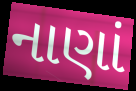
નાણાં